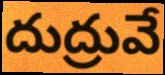
దుద్రువే